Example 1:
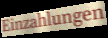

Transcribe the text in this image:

Einzahlungen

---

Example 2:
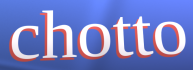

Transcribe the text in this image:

chotto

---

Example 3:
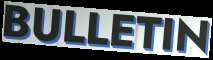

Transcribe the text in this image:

BULLETIN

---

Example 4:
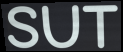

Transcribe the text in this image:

SUT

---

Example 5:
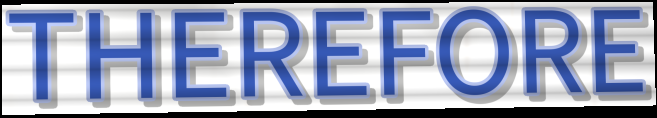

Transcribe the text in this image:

THEREFORE